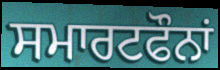
ਸਮਾਰਟਫੌਨਾਂ